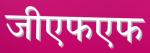
जीएफएफ